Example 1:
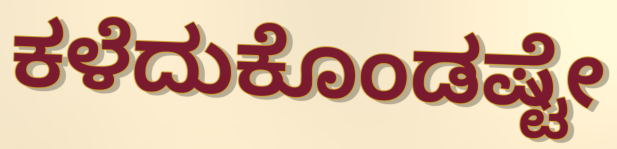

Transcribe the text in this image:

ಕಳೆದುಕೊಂಡಷ್ಟೇ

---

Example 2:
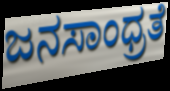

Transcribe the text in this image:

ಜನಸಾಂಧ್ರತೆ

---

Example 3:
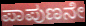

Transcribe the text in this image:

ಪಾಪುಣನೇ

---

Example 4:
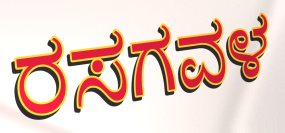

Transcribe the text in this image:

ರಸಗವಳ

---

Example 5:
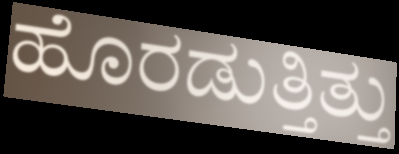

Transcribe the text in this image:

ಹೊರಡುತ್ತಿತ್ತು